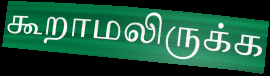
கூறாமலிருக்க